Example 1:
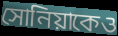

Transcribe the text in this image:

সোনিয়াকেও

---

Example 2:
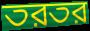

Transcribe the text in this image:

তরতর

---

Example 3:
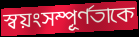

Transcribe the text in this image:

স্বয়ংসম্পূর্ণতাকে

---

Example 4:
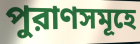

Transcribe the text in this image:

পুরাণসমূহে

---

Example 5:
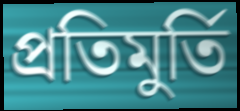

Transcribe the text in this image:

প্রতিমুর্তি